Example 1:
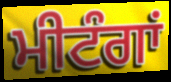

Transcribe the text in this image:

ਮੀਟੰਗਾਂ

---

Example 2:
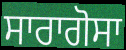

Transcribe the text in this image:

ਸਾਰਾਗੋਸਾ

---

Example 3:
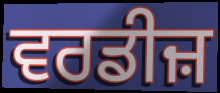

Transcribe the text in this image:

ਵਰਡੀਜ਼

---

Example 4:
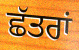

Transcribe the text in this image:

ਛੱਤਰਾਂ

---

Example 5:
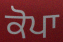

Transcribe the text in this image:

ਕੋਪਾ